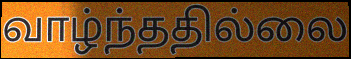
வாழ்ந்ததில்லை